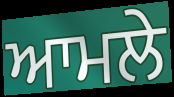
ਆਮਲੇ